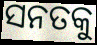
ସନତକୁ